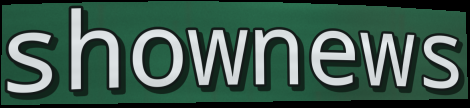
shownews